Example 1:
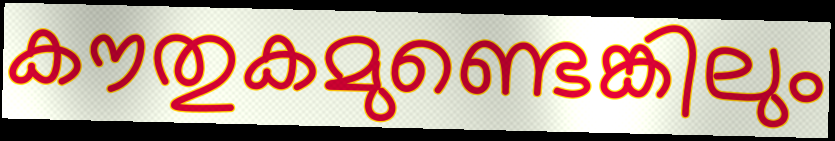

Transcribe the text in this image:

കൗതുകമുണ്ടെങ്കിലും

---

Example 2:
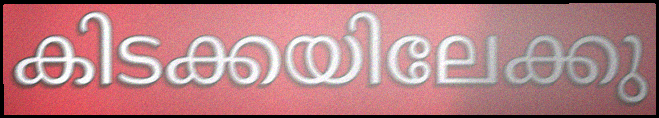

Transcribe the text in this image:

കിടക്കയിലേക്കു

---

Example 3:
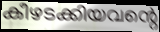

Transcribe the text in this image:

കീഴടക്കിയവന്റെ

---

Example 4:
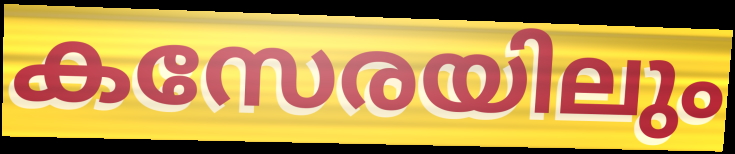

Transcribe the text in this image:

കസേരയിലും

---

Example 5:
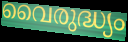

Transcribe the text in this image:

വൈരുദ്ധ്യം